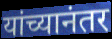
यांच्यानंतर